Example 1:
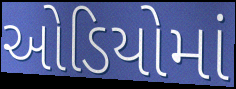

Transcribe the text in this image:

ઓડિયોમાં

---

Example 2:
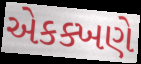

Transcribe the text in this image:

એકક્ખણે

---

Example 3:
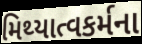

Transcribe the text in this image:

મિથ્યાત્વકર્મના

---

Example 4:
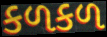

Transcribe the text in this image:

કળકળ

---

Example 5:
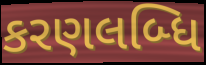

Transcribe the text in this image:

કરણલબ્ધિ